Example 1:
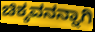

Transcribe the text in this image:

ಚಿಕ್ಕವನನ್ನಾಗಿ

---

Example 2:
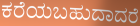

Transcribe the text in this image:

ಕರೆಯಬಹುದಾದರೆ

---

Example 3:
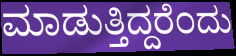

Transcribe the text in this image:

ಮಾಡುತ್ತಿದ್ದರೆಂದು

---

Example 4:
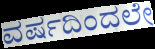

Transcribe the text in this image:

ವರ್ಷದಿಂದಲೇ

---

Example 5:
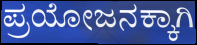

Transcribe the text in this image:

ಪ್ರಯೋಜನಕ್ಕಾಗಿ